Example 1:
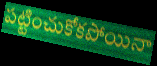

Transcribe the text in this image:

పట్టించుకోకపోయినా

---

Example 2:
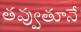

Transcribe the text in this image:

తవ్వుతూనే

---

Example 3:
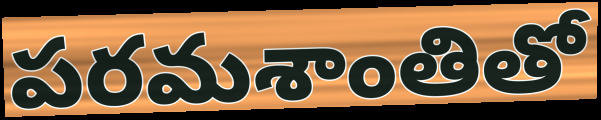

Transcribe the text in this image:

పరమశాంతితో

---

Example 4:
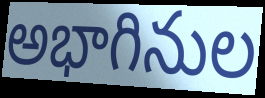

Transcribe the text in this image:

అభాగినుల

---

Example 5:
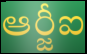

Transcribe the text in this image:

ఆర్జీఐ